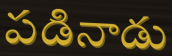
పడినాడు